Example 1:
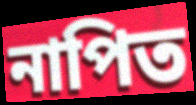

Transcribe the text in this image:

নাপিত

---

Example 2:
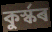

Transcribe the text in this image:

কুৰ্স্কৰ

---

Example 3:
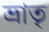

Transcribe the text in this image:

ভ্ৰাতৃ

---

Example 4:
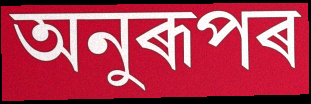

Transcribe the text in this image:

অনুৰূপৰ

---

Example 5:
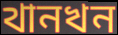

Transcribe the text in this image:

থানখন